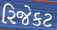
રિજેકટ